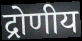
द्रोणीय